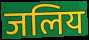
जलिय